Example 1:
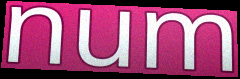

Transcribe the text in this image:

num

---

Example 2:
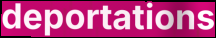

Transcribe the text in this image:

deportations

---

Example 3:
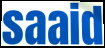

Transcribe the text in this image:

saaid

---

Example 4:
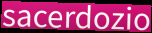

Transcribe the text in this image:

sacerdozio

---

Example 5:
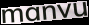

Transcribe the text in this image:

manvu